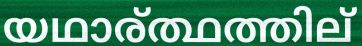
യഥാര്ത്ഥത്തില്